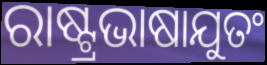
ରାଷ୍ଟ୍ରଭାଷାଯୁତଂ